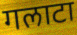
गलाटा